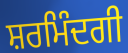
ਸ਼ਰਮਿੰਦਗੀ